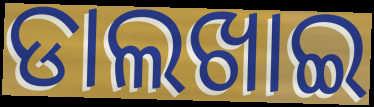
ଡାଲଖାଇ